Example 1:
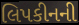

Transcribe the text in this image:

લિપકીનની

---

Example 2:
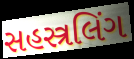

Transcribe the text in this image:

સહસ્ત્રલિંગ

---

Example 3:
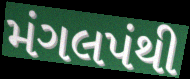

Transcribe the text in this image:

મંગલપંથી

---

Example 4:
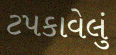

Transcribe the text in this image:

ટપકાવેલું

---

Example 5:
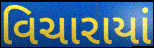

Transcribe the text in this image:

વિચારાયાં